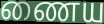
ணைய